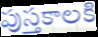
పుస్తకాలకి